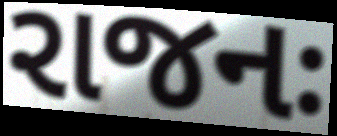
રાજનઃ